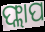
ଫ୍ଲାପ